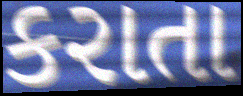
કરાતા